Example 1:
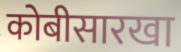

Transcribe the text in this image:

कोबीसारखा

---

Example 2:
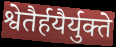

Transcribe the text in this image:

श्वेतैर्हयैर्युक्ते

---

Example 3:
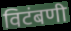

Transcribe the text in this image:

विटंबणी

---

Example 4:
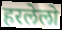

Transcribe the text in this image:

हरलेलो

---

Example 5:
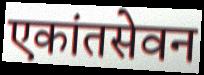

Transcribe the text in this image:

एकांतसेवन